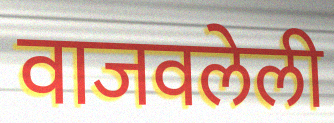
वाजवलेली